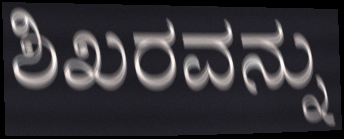
ಶಿಖರವನ್ನು